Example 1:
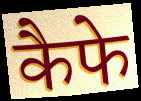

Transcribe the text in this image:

कैफे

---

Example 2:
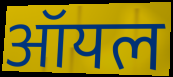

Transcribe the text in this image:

ऑयल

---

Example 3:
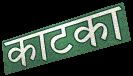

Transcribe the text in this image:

काटका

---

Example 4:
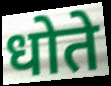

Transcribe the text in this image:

धोते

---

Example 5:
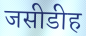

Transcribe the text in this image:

जसीडीह